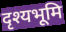
दृश्यभूमि